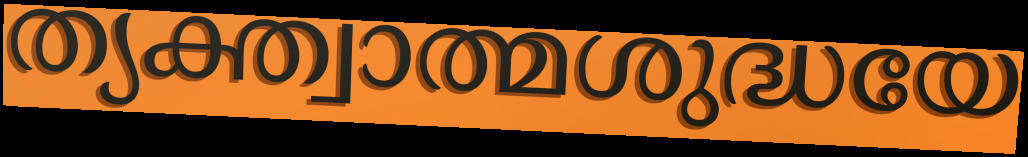
ത്യക്ത്വാത്മശുദ്ധയേ